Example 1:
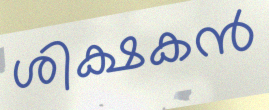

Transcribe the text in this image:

ശിക്ഷകൻ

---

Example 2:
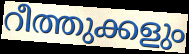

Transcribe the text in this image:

റീത്തുക്കളും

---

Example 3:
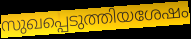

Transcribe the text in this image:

സുഖപ്പെടുത്തിയശേഷം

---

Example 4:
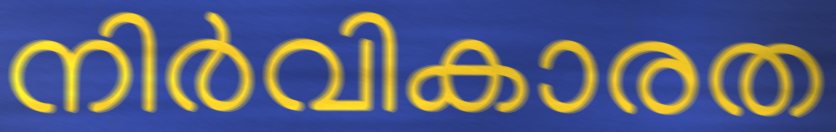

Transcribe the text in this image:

നിർവികാരത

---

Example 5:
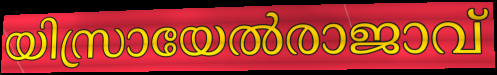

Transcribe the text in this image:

യിസ്രായേൽരാജാവ്